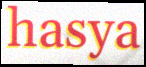
hasya